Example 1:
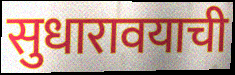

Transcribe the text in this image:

सुधारावयाची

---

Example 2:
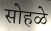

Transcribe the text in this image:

सोहळे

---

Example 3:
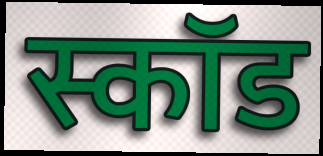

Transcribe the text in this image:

स्कॉड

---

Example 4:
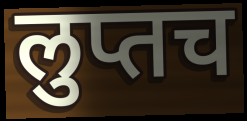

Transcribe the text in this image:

लुप्तच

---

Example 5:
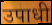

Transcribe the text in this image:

उपाधी